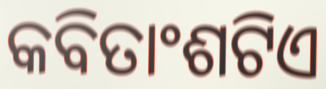
କବିତାଂଶଟିଏ